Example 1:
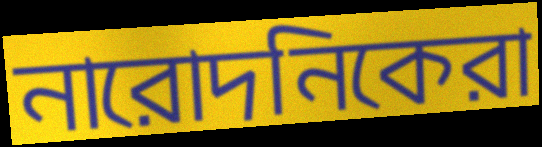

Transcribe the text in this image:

নারোদনিকেরা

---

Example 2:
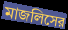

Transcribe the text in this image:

মাজলিসের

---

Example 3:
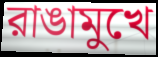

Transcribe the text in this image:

রাঙামুখে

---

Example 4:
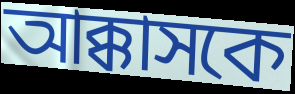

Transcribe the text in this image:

আক্কাসকে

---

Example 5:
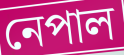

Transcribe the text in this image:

নেপাল